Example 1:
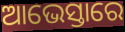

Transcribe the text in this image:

ଆଭେସ୍ତାରେ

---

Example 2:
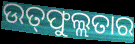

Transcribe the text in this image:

ଉତ୍‌ଫୁଲ୍ଲତାର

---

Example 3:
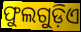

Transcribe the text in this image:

ଫୁଲଗୁଡ଼ିଏ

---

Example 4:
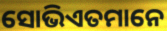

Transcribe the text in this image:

ସୋଭିଏତମାନେ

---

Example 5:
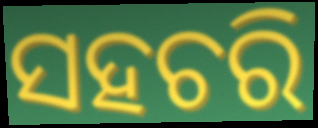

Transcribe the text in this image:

ସହଚରି